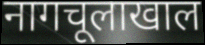
नागचूलाखाल